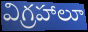
విగ్రహాలూ